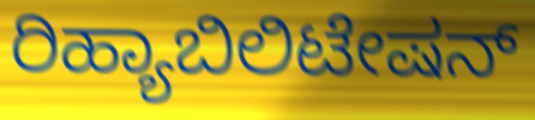
ರಿಹ್ಯಾಬಿಲಿಟೇಷನ್